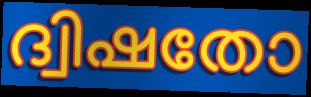
ദ്വിഷതോ